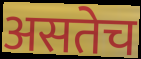
असतेच